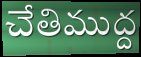
చేతిముద్ద